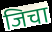
जिचा